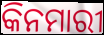
କିନମାରୀ